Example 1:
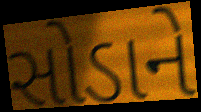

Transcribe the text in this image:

સોડાને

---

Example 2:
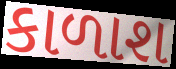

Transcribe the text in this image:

કાળાશ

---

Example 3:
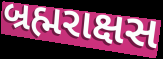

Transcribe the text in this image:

બ્રહ્મરાક્ષસ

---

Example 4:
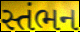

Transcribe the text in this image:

સ્તંભન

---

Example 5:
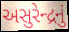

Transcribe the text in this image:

અસુરેન્દ્રનું